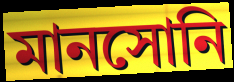
মানসোনি